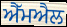
ਐੱਮਐਲ